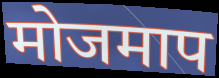
मोजमाप